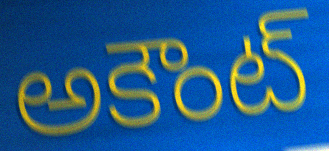
అకౌంట్